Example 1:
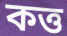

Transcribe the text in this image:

কত্ত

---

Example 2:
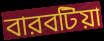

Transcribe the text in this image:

বারবটিয়া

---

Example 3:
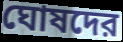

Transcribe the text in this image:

ঘোষদের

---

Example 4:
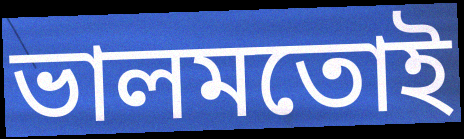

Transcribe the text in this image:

ভালমতোই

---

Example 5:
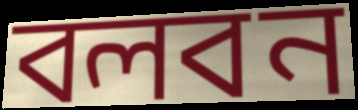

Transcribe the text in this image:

বলবন